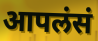
आपलंसं